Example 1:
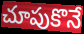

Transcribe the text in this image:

చూపుకొనే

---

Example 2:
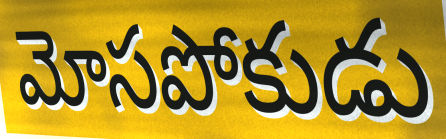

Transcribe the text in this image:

మోసపోకుడు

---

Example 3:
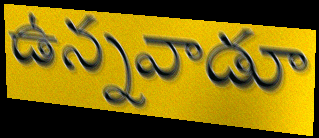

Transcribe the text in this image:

ఉన్నవాడూ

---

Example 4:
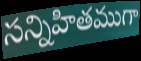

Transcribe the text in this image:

సన్నిహితముగా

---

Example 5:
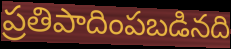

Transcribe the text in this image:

ప్రతిపాదింపబడినది